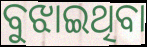
ବୁଝାଇଥିବା